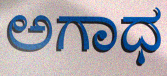
ಅಗಾಧ